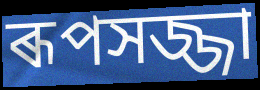
ৰূপসজ্জা